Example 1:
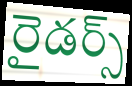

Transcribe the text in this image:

రైడర్స్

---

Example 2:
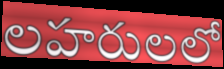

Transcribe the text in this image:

లహరులలో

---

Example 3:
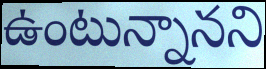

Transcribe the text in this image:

ఉంటున్నానని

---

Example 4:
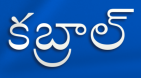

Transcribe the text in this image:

కబ్రాల్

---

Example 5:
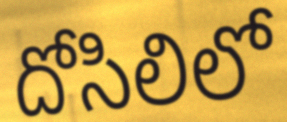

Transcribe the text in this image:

దోసిలిలో